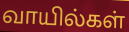
வாயில்கள்